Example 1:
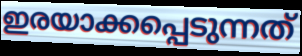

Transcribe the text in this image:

ഇരയാക്കപ്പെടുന്നത്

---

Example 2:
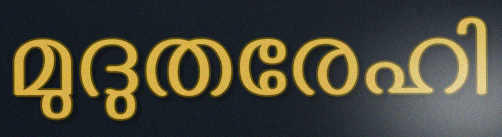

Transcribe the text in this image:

മുദുതരേഹി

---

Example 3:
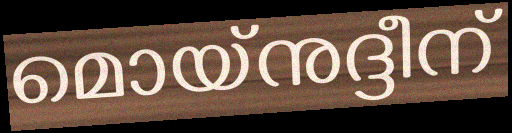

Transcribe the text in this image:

മൊയ്നുദ്ദീന്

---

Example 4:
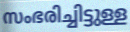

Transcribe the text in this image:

സംഭരിച്ചിട്ടുള്ള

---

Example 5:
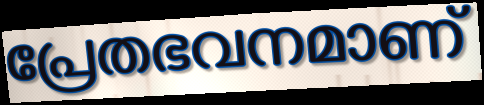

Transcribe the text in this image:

പ്രേതഭവനമാണ്